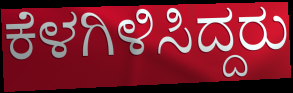
ಕೆಳಗಿಳಿಸಿದ್ದರು